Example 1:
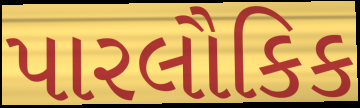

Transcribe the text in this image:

પારલૌકિક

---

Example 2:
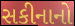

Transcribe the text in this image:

સકીનાનો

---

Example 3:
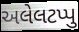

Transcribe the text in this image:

અલેલટપ્પુ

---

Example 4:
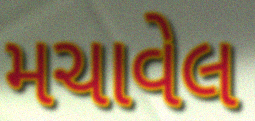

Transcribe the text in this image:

મચાવેલ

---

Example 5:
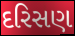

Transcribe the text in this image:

દરિસણ